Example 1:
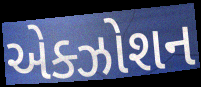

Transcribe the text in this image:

એક્ઝોશન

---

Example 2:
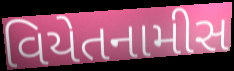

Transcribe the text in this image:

વિયેતનામીસ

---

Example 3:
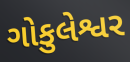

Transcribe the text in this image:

ગોકુલેશ્વર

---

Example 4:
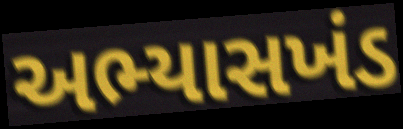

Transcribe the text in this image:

અભ્યાસખંડ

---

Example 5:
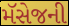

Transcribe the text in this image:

મૅસેજની